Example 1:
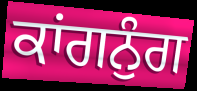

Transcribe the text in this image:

ਕਾਂਗਨੁੰਗ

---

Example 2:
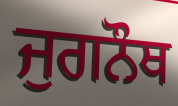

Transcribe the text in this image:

ਜੁਗਨੌਥ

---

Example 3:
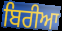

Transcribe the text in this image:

ਬਿਰੀਆ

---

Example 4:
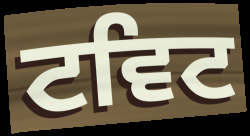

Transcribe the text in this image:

ਟਵਿਟ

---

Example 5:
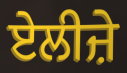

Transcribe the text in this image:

ਏਲੀਜ਼ੇ